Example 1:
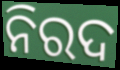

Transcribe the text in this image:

ନିରଦ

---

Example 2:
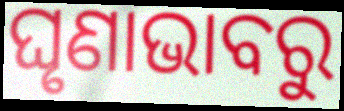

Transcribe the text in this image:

ଘୃଣାଭାବରୁ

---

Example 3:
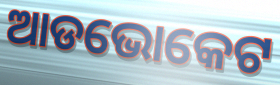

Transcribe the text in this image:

ଆଡଭୋକେଟ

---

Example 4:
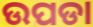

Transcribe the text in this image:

ଉପଡା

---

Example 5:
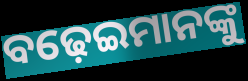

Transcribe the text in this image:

ବଢ଼େଇମାନଙ୍କୁ